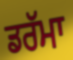
ਡਰੱਮਾ